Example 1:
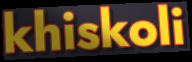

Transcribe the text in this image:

khiskoli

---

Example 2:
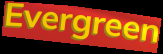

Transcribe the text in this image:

Evergreen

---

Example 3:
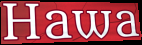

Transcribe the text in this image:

Hawa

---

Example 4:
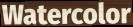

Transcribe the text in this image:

Watercolor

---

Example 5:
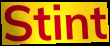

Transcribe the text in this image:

Stint